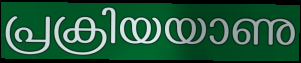
പ്രക്രിയയാണു